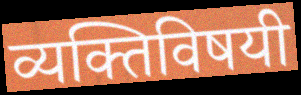
व्यक्तिविषयी